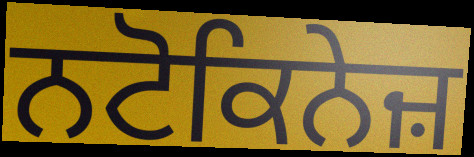
ਨਟੋਕਿਨੇਜ਼